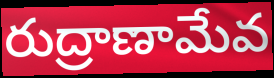
రుద్రాణామేవ